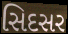
સિદસર